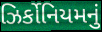
ઝિર્કોનિયમનું